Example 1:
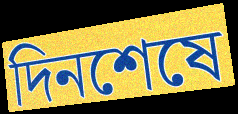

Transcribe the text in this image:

দিনশেষে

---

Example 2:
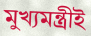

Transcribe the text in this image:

মুখ্যমন্ত্রীই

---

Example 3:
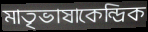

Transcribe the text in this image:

মাতৃভাষাকেন্দ্রিক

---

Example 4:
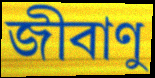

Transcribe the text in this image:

জীবাণু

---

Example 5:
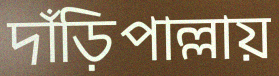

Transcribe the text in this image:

দাঁড়িপাল্লায়